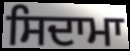
ਸਿਦਾਮਾ